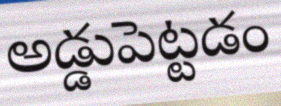
అడ్డుపెట్టడం